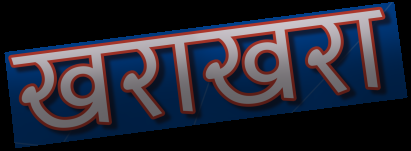
खराखरा